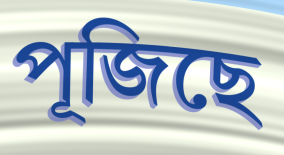
পূজিছে